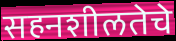
सहनशीलतेचे